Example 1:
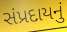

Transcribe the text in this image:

સંપ્રદાયનું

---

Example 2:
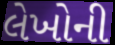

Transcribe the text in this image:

લેખોની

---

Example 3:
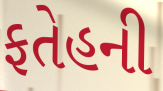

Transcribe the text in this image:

ફતેહની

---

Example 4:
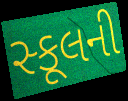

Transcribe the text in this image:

સ્કૂલની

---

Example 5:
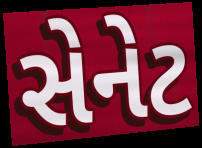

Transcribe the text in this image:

સેનેટ